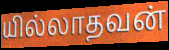
யில்லாதவன்